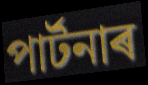
পাৰ্টনাৰ